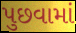
પુછવામાં